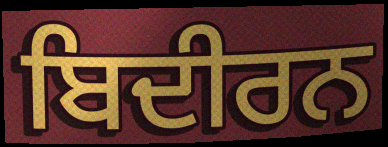
ਬਿਦੀਰਨ